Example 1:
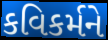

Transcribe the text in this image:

કવિકર્મને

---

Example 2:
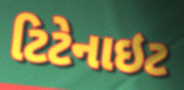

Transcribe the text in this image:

ટિટેનાઇટ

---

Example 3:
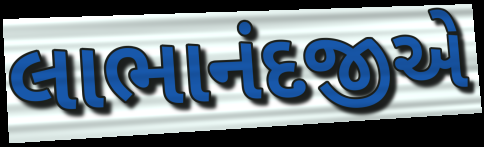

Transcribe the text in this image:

લાભાનંદજીએ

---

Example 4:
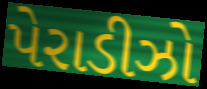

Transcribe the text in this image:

પેરાડીઝો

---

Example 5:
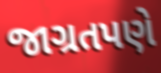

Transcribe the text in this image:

જાગ્રતપણે